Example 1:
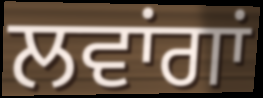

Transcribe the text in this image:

ਲਵਾਂਗਾਂ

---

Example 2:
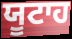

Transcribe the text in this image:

ਯੂਟਾਹ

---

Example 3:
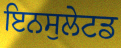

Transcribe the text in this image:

ਇਨਸੁਲੇਟਡ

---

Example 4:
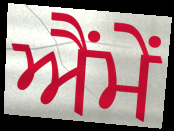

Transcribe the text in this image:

ਐਂਮੇਂ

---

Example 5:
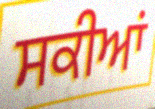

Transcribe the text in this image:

ਸਕੀਆਂ